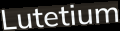
Lutetium